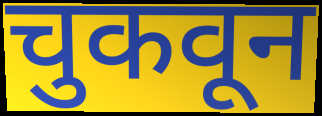
चुकवून